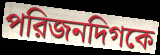
পরিজনদিগকে